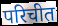
परिचीत